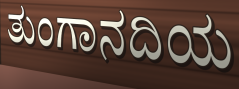
ತುಂಗಾನದಿಯ